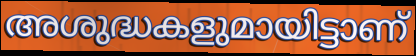
അശുദ്ധകളുമായിട്ടാണ്